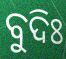
ବୁଦିଃ